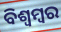
ବିଶ୍ଵମ୍ବର